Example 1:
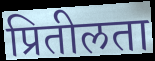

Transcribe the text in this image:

प्रितीलता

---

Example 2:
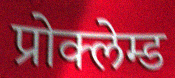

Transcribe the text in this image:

प्रोक्लेम्ड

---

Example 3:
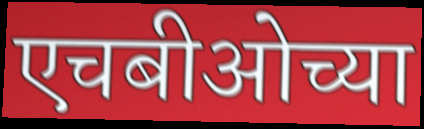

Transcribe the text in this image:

एचबीओच्या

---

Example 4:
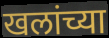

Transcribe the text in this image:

खलांच्या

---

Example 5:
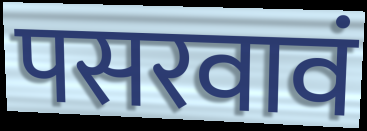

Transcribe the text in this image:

पसरवावं